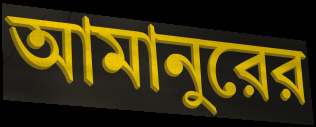
আমানুরের